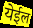
येईल